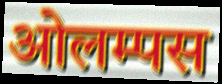
ओलम्पस